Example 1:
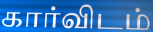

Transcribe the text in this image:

கார்விடம்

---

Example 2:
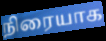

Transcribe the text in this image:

நிரையாக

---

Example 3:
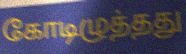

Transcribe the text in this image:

கோடிழுத்தது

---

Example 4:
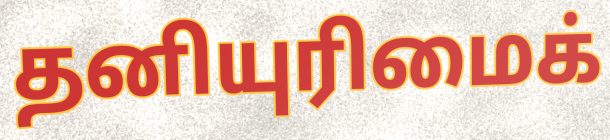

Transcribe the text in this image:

தனியுரிமைக்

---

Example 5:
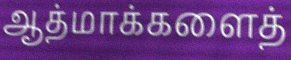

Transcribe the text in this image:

ஆத்மாக்களைத்